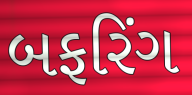
બફરિંગ